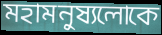
মহামনুষ্যলোকে